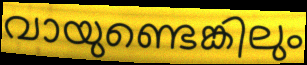
വായുണ്ടെങ്കിലും